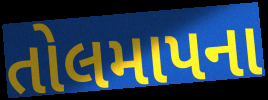
તોલમાપના